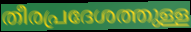
തീരപ്രദേശത്തുള്ള